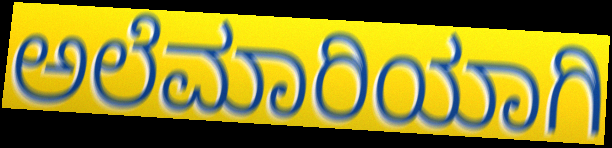
ಅಲೆಮಾರಿಯಾಗಿ